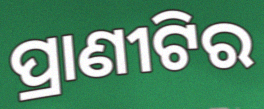
ପ୍ରାଣୀଟିର